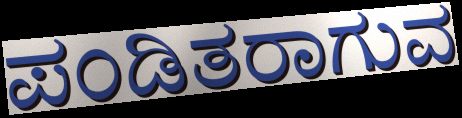
ಪಂಡಿತರಾಗುವ